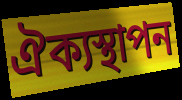
ঐক্যস্থাপন